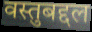
वस्तुबद्दल